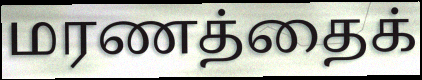
மரணத்தைக்